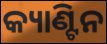
କ୍ୟାଣ୍ଟିନ